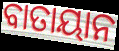
ବାତାୟାନ